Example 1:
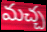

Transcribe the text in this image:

మచ్చ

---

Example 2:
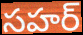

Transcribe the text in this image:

సహర్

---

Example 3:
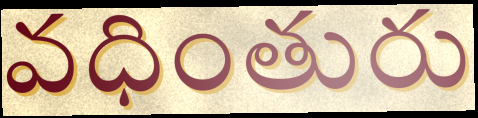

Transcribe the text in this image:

వధింతురు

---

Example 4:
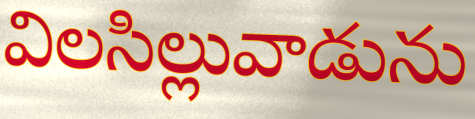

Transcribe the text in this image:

విలసిల్లువాడును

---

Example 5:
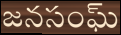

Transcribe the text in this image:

జనసంఘ్